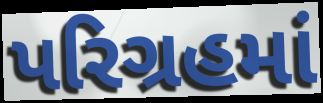
પરિગ્રહમાં